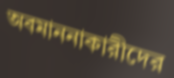
অবমাননাকারীদের